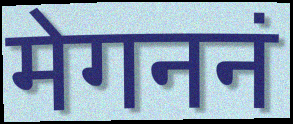
मेगननं